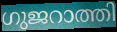
ഗുജറാത്തി